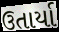
ઉતાર્યા